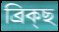
ব্ৰিক্ছ